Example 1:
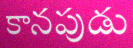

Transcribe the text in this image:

కానపుడు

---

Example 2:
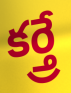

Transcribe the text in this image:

కర్త్రే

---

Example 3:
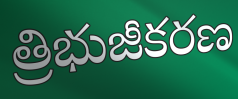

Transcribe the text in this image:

త్రిభుజీకరణ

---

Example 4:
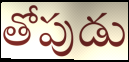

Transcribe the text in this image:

తోపుడు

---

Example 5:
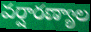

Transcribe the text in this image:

వర్షారణ్యాల